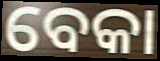
ବେକା